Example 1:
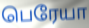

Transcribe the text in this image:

பெரேயா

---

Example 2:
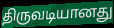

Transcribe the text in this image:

திருவடியானது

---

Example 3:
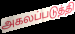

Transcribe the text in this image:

அகலப்படுத்தி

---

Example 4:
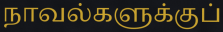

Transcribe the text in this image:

நாவல்களுக்குப்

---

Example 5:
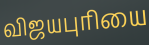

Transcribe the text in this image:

விஜயபுரியை